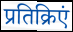
प्रतिक्रिएं